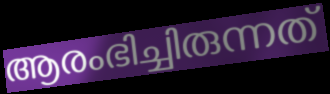
ആരംഭിച്ചിരുന്നത്